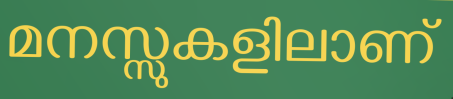
മനസ്സുകളിലാണ്